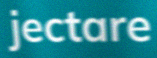
jectare